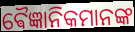
ଵୈଜ୍ଞାନିକମାନଙ୍କ